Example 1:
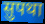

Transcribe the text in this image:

सुपथा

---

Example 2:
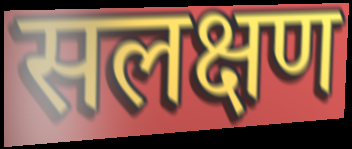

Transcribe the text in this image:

सलक्षण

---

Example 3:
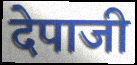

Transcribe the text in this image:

देपाजी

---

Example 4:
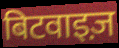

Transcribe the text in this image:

बिटवाइज़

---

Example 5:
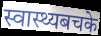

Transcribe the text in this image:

स्वास्थ्यबचके